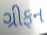
ગ્રીફન